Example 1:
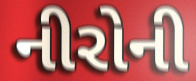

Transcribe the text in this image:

નીરોની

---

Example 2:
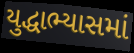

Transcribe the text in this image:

યુદ્ધાભ્યાસમાં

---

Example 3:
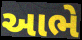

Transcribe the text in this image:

આભે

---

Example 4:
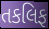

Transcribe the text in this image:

તકલિફ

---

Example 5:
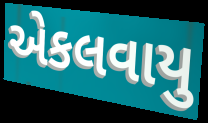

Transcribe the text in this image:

એકલવાયુ